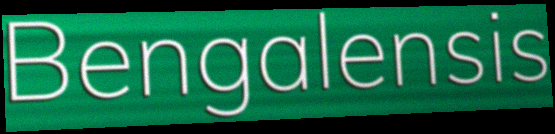
Bengalensis